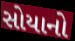
સોયાનો